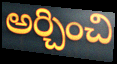
అర్చించి